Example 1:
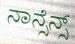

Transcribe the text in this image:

ನಾನ್ಸೆನ್ಸ್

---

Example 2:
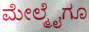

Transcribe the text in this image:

ಮೇಲ್ಮೈಗೂ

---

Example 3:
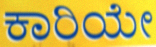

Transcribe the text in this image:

ಕಾರಿಯೇ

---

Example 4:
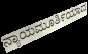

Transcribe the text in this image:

ನ್ಯಾಯಮೂರ್ತಿಯಾದ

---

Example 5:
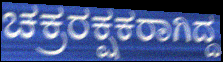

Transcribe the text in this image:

ಚಕ್ರರಕ್ಷಕರಾಗಿದ್ದ